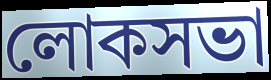
লোকসভা